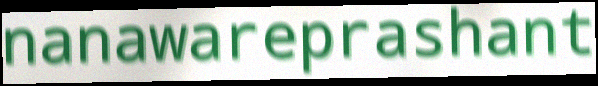
nanawareprashant